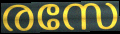
രസേ